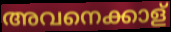
അവനെക്കാള്